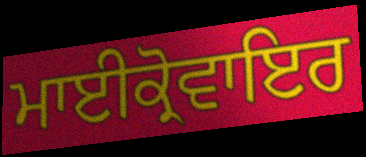
ਮਾਈਕ੍ਰੋਵਾਇਰ